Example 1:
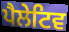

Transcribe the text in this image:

ਪੈਲੇਟਿਵ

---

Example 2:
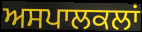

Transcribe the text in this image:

ਅਸਪਾਲਕਲਾਂ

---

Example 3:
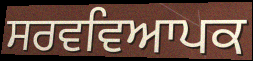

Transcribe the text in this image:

ਸਰਵਵਿਆਪਕ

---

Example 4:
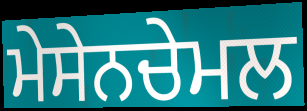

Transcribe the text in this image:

ਮੇਸੇਨਚੇਮਲ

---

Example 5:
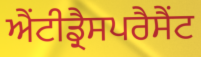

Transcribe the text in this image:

ਐਂਟੀਡ੍ਰੈਸਪਰੈਸੈਂਟ